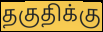
தகுதிக்கு